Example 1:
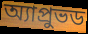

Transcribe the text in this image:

অ্যাপ্রুভড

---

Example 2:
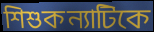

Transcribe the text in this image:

শিশুকন্যাটিকে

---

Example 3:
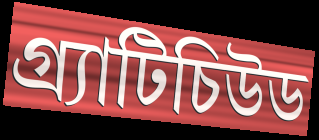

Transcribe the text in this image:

গ্র্যাটিচিউড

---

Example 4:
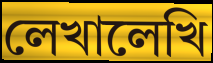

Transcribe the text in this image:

লেখালেখি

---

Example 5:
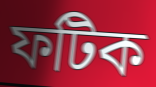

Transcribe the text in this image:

ফটিক